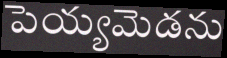
పెయ్యమెడను